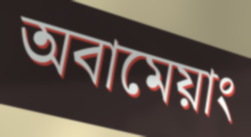
অবামেয়াং